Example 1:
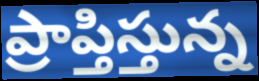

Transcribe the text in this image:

ప్రాప్తిస్తున్న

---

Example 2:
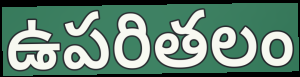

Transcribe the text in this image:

ఉపరితలం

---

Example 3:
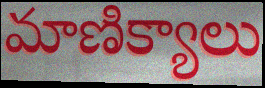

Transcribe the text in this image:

మాణిక్యాలు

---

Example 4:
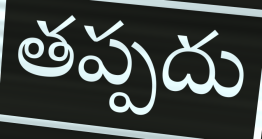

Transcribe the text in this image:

తప్పదు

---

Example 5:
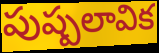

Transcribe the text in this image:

పుష్పలావిక